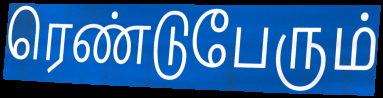
ரெண்டுபேரும்